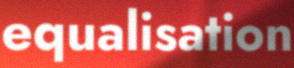
equalisation